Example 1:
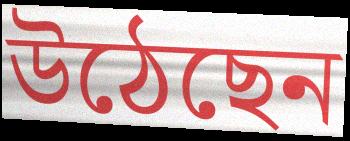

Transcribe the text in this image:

উঠেছেন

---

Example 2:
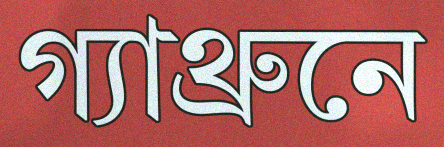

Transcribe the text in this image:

গ্যাথ্রুনে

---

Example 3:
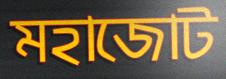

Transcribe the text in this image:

মহাজোট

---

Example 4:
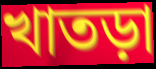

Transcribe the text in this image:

খাতড়া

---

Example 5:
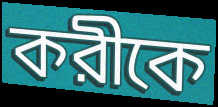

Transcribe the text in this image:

করীকে